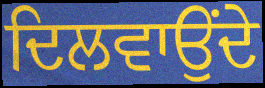
ਦਿਲਵਾਉਂਦੇ